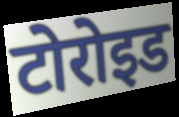
टोरोइड